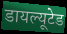
डायल्यूटेड